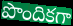
పొందికగా